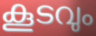
കൂടവും